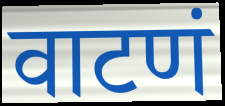
वाटणं